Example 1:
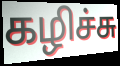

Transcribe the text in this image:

கழிச்சு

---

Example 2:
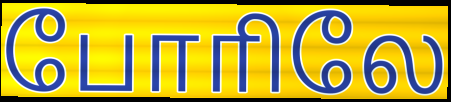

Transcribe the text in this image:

போரிலே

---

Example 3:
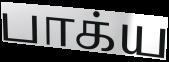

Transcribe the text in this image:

பாக்ய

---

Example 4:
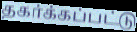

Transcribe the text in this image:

தகர்க்கப்பட்டு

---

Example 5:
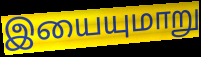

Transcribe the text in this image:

இயையுமாறு